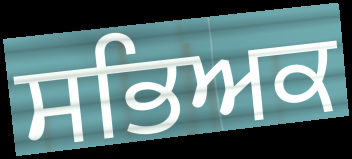
ਸਭਿਅਕ